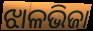
ଝାଳଭିଜା